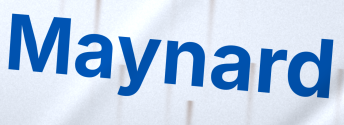
Maynard